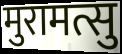
मुरामत्सु